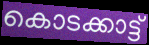
കൊടക്കാട്ട്